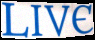
LIVE